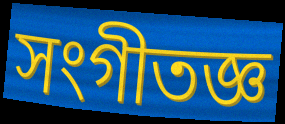
সংগীতজ্ঞ